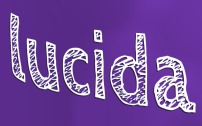
lucida